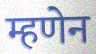
म्हणेन